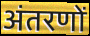
अंतरणों